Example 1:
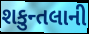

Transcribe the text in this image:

શકુન્તલાની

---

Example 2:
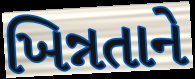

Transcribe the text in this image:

ખિન્નતાને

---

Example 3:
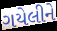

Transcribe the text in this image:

ગયેલીને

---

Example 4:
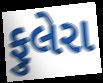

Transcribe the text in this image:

ફુલેરા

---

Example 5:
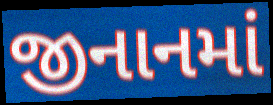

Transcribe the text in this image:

જીનાનમાં